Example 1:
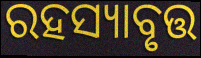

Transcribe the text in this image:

ରହସ୍ୟାବୃତ୍ତ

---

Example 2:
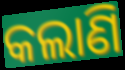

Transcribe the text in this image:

କଲାଣି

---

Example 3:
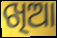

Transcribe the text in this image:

ଖିଆ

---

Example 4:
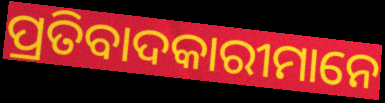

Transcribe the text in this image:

ପ୍ରତିବାଦକାରୀମାନେ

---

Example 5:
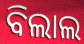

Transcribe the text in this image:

ବିଲାଲ